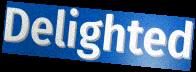
Delighted